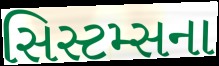
સિસ્ટમ્સના